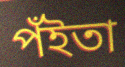
পঁইতা